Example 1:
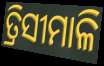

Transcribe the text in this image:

ତ୍ରିସୀମାଳି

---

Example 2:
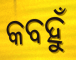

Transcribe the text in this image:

କବହୁଁ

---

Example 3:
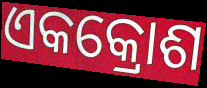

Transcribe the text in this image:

ଏକକ୍ରୋଶ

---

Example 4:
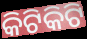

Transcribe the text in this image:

କିଟିକିଟି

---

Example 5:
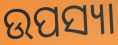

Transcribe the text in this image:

ଉପସ୍ୟା